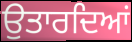
ਉਤਾਰਦਿਆਂ